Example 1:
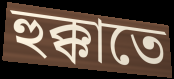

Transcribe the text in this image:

হুক্কাতে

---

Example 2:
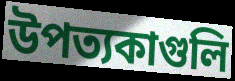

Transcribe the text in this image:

উপত্যকাগুলি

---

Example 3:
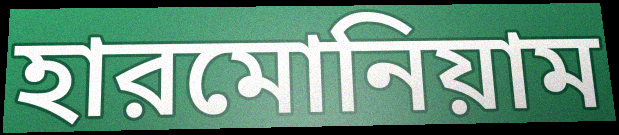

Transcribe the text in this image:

হারমোনিয়াম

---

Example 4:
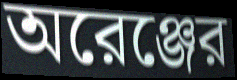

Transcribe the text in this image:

অরেঞ্জের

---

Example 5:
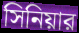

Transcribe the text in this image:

সিনিয়ার